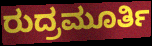
ರುದ್ರಮೂರ್ತಿ